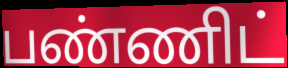
பண்ணிட்